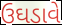
ઉઘડાવે